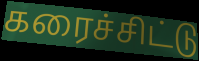
கரைச்சிட்டு